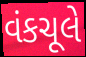
વંકચૂલે